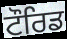
ਟੌਰਿਡ